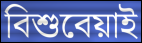
বিশুবেয়াই